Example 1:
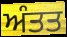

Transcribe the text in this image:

ਅੰਤਤ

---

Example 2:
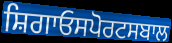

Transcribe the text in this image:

ਸ਼ਿਗਾਓਸਪੋਰਟਸਬਾਲ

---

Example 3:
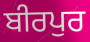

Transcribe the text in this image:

ਬੀਰਪੁਰ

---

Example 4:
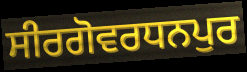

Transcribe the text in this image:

ਸੀਰਗੋਵਰਧਨਪੁਰ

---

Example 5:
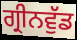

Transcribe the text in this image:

ਗ੍ਰੀਨਵੁੱਡ